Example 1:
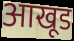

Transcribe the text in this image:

आखूड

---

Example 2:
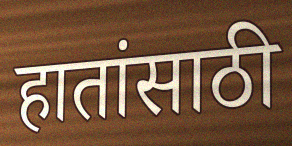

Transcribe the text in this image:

हातांसाठी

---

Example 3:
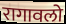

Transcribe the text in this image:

रागावलो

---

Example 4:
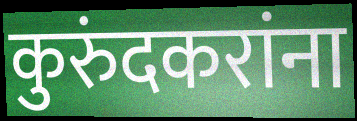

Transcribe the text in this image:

कुरुंदकरांना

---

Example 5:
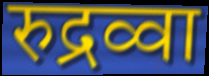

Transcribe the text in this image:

रुद्रव्वा